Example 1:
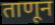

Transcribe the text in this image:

ताणून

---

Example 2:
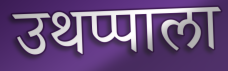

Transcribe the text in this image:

उथप्पाला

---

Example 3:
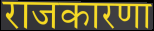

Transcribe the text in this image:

राजकारणा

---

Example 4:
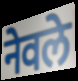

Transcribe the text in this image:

नेवले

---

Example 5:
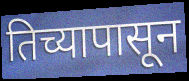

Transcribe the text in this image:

तिच्यापासून